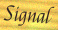
Signal